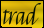
trad